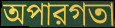
অপারগতা